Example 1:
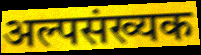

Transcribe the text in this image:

अल्‍पसंख्‍यक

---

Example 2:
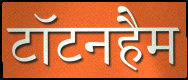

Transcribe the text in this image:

टॉटनहैम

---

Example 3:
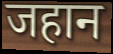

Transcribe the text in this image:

जहान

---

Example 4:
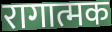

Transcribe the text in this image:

रागात्मक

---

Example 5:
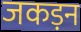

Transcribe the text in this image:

जकड़न